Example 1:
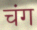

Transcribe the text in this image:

चंग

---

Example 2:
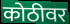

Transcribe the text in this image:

कोठीवर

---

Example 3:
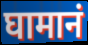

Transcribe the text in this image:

घामानं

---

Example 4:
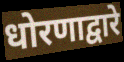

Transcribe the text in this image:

धोरणाद्वारे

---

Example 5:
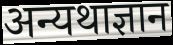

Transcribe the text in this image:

अन्यथाज्ञान